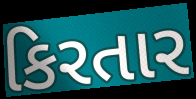
કિરતાર